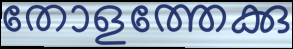
തോളത്തേക്കു